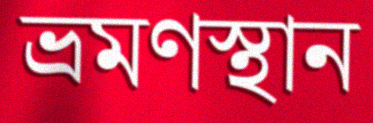
ভ্রমণস্থান